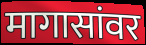
मागासांवर